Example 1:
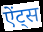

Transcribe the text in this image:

ऐंट्स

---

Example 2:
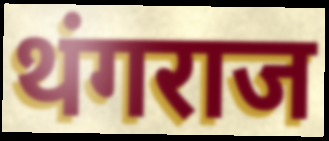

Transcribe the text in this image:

थंगराज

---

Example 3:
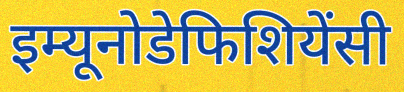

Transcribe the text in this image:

इम्यूनोडेफिशियेंसी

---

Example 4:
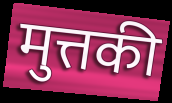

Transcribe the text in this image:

मुत्तकी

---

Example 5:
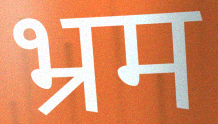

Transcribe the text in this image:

भ्रम